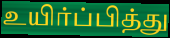
உயிர்ப்பித்து